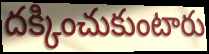
దక్కించుకుంటారు